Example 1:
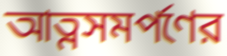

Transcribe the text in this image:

আত্নসমর্পণের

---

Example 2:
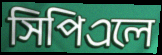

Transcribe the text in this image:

সিপিএলে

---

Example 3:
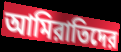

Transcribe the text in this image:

আমিরাতিদের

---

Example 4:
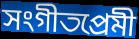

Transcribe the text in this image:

সংগীতপ্রেমী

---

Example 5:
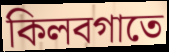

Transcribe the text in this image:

কিলবগাতে